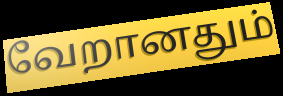
வேறானதும்